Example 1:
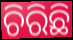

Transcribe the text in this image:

ଚିରିଛି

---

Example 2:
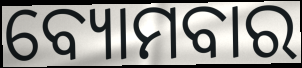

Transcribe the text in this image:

ବ୍ୟୋମବାର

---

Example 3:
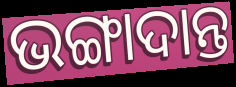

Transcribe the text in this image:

ଭଙ୍ଗାଦାନ୍ତ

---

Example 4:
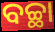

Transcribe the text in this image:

ବଚ୍ଛା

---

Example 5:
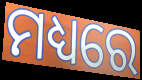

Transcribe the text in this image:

ମଧ୍ଯରେ